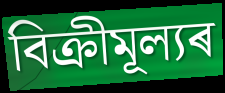
বিক্ৰীমূল্যৰ